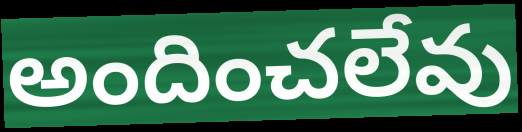
అందించలేవు